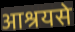
आश्रयसे